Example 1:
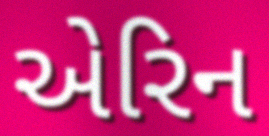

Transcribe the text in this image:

એરિન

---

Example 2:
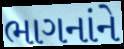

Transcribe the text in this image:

ભાગનાંને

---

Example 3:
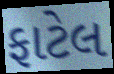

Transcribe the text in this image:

ફાટેલ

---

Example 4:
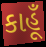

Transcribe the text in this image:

કાહૂઁ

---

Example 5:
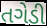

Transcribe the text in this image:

તગેડી